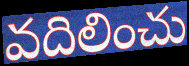
వదిలించు